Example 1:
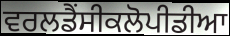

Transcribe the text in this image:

ਵਰਲਡੈਂਸੀਕਲੋਪੀਡੀਆ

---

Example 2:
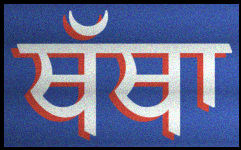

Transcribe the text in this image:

ਥੱਥਾ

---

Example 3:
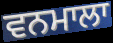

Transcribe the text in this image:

ਵਨਮਾਲਾ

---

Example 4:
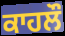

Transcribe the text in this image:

ਕਾਹਲੌ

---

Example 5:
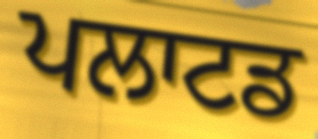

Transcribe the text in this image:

ਪਲਾਟਡ